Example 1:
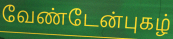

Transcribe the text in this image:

வேண்டேன்புகழ்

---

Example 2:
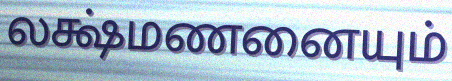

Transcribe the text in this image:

லக்ஷ்மணனையும்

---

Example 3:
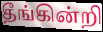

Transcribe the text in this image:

தீங்கின்றி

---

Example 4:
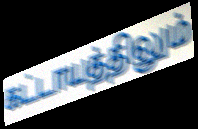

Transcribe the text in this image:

கட்டாயத்திலும்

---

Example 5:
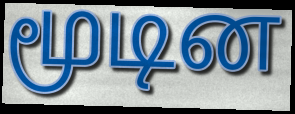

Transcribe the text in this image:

மூடின